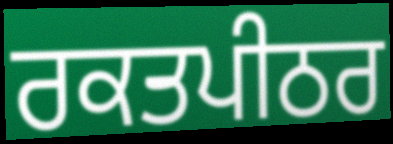
ਰਕਤਪੀਠਰ